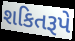
શકિતરૂપે